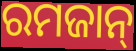
ରମଜାନ୍